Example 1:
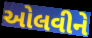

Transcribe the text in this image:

ઓલવીને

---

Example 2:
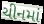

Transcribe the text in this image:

ચીનમાં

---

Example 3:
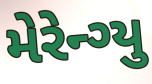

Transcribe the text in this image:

મેરેન્ગ્યુ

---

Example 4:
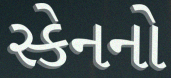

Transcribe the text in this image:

સ્કેનનો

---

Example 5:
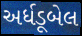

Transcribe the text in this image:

અર્ધડૂબેલ